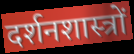
दर्शनशास्त्रों